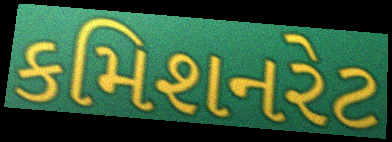
કમિશનરેટ